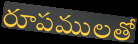
రూపములతో